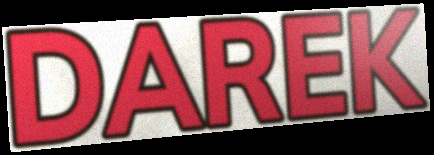
DAREK